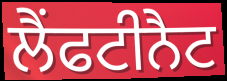
ਲੈਂਫਟੀਨੈਟ